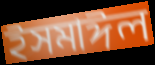
ইসমাঈল